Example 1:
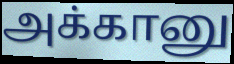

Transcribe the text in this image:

அக்கானு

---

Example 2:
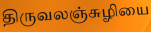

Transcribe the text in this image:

திருவலஞ்சுழியை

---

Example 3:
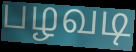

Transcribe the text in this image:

பழவடி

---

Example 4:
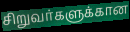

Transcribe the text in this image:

சிறுவர்களுக்கான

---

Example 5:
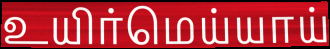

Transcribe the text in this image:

உயிர்மெய்யாய்